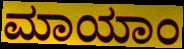
ಮಾಯಾಂ